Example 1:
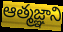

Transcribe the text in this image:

ఆత్మజ్ఞాని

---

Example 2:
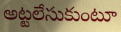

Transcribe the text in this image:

అట్టలేసుకుంటూ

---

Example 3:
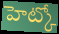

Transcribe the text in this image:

హెట్కో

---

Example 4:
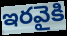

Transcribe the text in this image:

ఇరవైకి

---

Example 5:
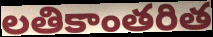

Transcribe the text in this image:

లతికాంతరిత